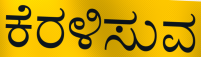
ಕೆರಳಿಸುವ